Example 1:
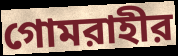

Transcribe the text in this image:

গোমরাহীর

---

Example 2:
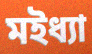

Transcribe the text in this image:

মইধ্যা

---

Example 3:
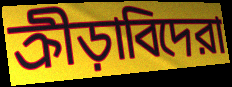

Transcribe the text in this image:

ক্রীড়াবিদেরা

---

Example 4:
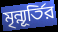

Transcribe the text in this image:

মৃন্মূর্তির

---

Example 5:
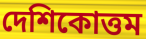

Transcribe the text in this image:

দেশিকোত্তম